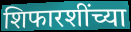
शिफारशींच्या